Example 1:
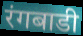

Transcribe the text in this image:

रंगबाडी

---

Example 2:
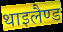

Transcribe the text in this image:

थाइलैण्ड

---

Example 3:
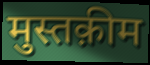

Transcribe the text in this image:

मुस्तक़ीम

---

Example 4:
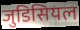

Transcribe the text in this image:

जुडिसियल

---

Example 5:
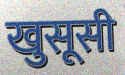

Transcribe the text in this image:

खुसूसी